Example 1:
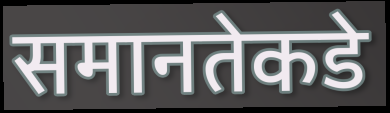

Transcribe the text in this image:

समानतेकडे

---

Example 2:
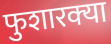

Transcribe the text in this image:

फुशारक्‍या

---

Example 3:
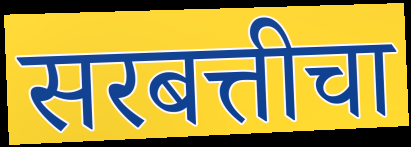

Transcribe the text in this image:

सरबत्तीचा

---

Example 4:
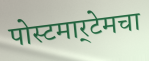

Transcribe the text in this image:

पोस्टमार्टेमचा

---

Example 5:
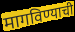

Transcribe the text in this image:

मागविण्याची